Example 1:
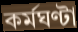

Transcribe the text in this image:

কৰ্মঘণ্টা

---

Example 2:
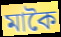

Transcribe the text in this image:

মাকৈ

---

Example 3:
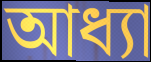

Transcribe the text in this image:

আধ্যা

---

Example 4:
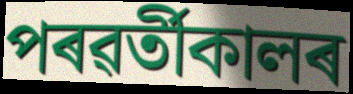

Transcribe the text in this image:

পৰৱৰ্তীকালৰ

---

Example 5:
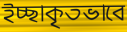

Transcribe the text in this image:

ইচ্ছাকৃতভাবে